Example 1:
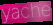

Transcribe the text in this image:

yache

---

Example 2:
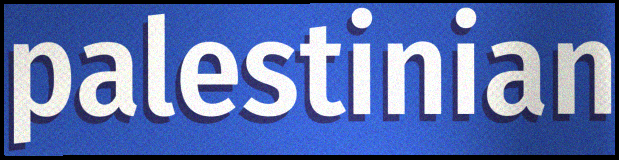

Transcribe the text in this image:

palestinian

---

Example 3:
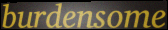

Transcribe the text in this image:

burdensome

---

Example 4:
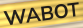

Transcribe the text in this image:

WABOT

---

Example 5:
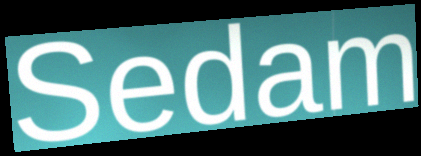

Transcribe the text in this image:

Sedam